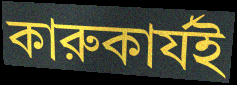
কারুকার্যই